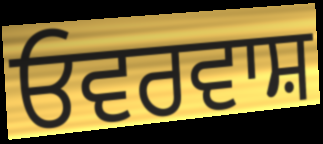
ਓਵਰਵਾਸ਼